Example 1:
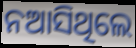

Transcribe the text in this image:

ନଆସିଥିଲେ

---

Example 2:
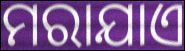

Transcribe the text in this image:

ମରାଯାଏ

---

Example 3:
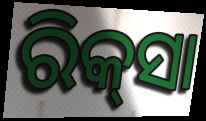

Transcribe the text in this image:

ରିକ୍‌ସା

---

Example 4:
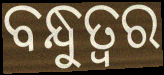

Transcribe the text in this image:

ବନ୍ଧୁତ୍ବର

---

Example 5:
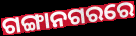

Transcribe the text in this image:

ଗଙ୍ଗାନଗରରେ